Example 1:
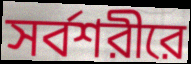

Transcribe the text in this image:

সর্বশরীরে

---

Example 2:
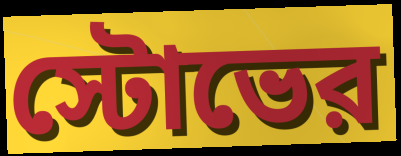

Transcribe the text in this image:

স্টোভের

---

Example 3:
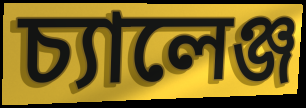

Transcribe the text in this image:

চ্যালেঞ্জ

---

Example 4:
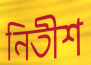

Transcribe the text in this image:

নিতীশ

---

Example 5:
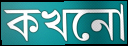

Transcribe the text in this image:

কখনো